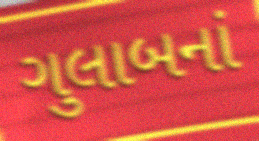
ગુલાબનાં